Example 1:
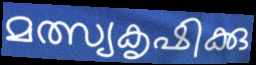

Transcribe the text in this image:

മത്സ്യകൃഷിക്കു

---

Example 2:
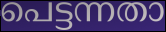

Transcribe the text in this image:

പെട്ടന്നതാ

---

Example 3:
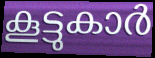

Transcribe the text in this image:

കൂട്ടുകാർ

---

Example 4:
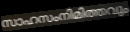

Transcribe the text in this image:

സാഹസംനിമിത്തവും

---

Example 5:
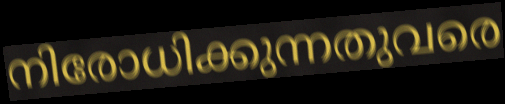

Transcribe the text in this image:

നിരോധിക്കുന്നതുവരെ